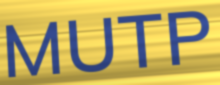
MUTP